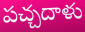
పచ్చదాళు